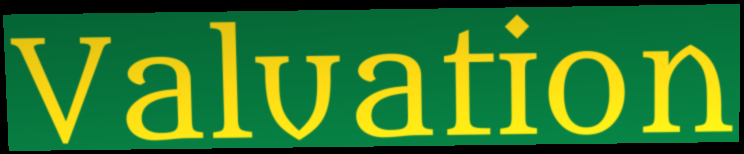
Valuation